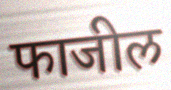
फाजील